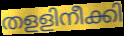
തളളിനീക്കി